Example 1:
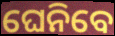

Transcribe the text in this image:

ଘେନିବେ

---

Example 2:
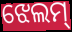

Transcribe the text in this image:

ଝେଲମ୍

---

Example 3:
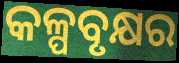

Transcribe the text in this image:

କଳ୍ପବୃକ୍ଷର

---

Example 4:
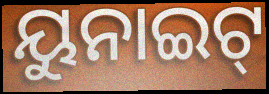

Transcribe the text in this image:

ୟୁନାଇଟ୍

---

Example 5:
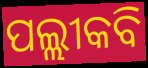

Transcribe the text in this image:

ପଲ୍ଲୀକବି